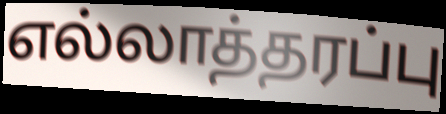
எல்லாத்தரப்பு